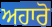
ਅਹਾਰੋ